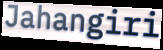
Jahangiri